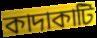
কাদাকাটি